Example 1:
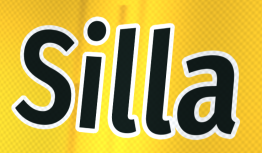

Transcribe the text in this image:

Silla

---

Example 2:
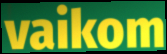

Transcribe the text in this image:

vaikom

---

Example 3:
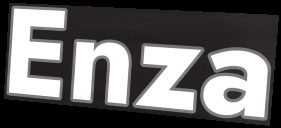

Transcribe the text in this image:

Enza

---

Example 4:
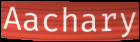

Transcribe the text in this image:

Aachary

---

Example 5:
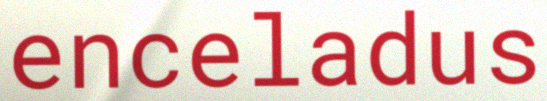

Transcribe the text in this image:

enceladus